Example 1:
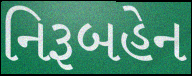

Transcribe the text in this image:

નિરૂબહેન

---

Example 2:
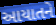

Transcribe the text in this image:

આયાતને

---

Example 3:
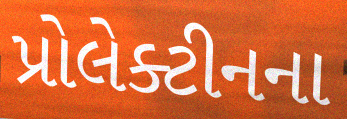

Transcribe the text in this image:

પ્રોલેક્ટીનના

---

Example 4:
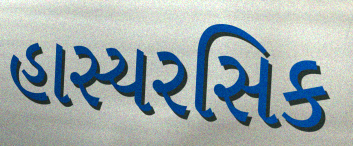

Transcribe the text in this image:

હાસ્યરસિક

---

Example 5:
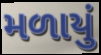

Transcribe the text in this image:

મળાયું